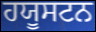
ਹਯੂਸਟਨ